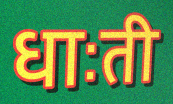
धाःती